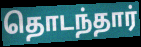
தொடந்தார்